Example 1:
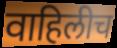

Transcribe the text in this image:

वाहिलीच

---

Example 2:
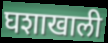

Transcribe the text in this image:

घशाखाली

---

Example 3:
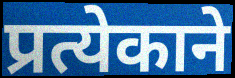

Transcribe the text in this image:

प्रत्येकाने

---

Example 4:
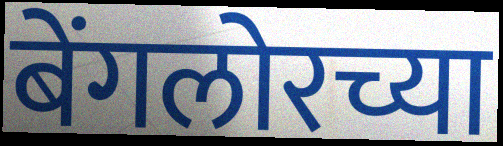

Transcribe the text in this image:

बेंगलोरच्या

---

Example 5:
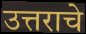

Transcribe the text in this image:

उत्तराचे